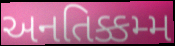
અનતિક્કમ્મ